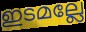
ഇടമല്ലേ